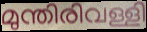
മുന്തിരിവള്ളി